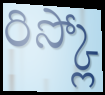
రిస్క్లో